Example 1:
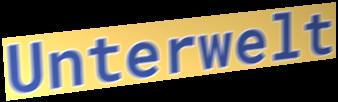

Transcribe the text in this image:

Unterwelt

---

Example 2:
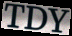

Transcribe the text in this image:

TDY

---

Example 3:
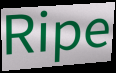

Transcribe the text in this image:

Ripe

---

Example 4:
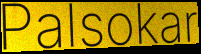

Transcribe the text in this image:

Palsokar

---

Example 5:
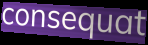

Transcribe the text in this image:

consequat